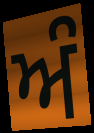
ਅੰ